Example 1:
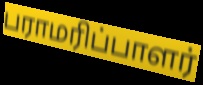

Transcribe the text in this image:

பராமரிப்பாளர்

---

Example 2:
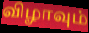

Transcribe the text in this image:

விழாவும்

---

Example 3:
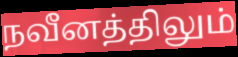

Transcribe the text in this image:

நவீனத்திலும்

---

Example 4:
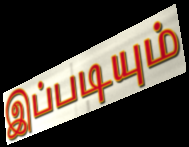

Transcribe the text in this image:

இப்படியும்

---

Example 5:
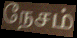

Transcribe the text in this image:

நேசம்